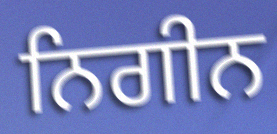
ਨਿਗੀਨ